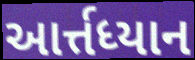
આર્ત્તધ્યાન